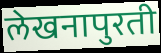
लेखनापुरती